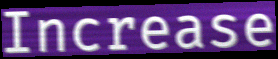
Increase